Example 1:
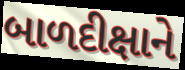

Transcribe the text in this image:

બાળદીક્ષાને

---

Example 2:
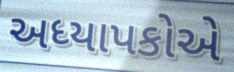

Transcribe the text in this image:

અધ્યાપકોએ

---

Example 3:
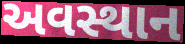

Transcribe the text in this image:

અવસ્થાન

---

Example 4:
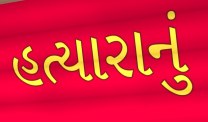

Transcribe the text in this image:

હત્યારાનું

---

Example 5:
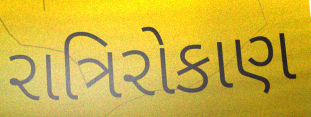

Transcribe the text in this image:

રાત્રિરોકાણ